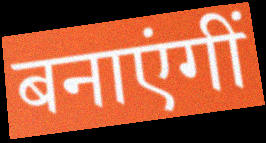
बनाएंगीं